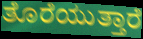
ತೊರೆಯುತ್ತಾರೆ